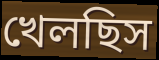
খেলছিস